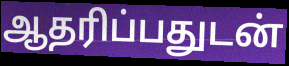
ஆதரிப்பதுடன்